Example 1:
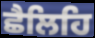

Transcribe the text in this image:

ਛੈਲਿਹਿ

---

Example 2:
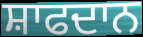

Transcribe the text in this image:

ਸ਼ਾਫਦਾਨ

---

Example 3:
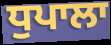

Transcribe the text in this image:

ਧੁਪਾਲਾ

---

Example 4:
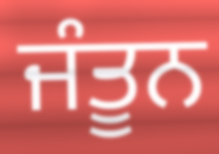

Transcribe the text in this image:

ਜੰਤੂਨ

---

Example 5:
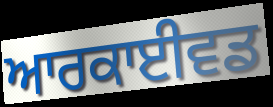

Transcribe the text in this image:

ਆਰਕਾਈਵਡ